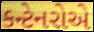
કન્ટેનરોએ